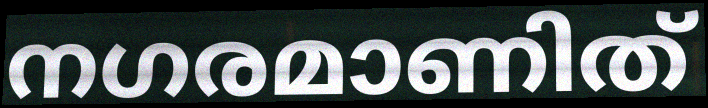
നഗരമാണിത്